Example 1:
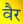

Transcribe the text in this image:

वैर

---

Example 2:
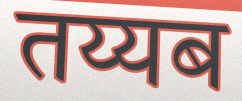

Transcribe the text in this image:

तय्यब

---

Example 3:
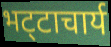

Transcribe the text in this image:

भट्‍टाचार्य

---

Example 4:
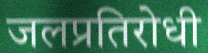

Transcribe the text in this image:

जलप्रतिरोधी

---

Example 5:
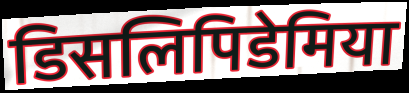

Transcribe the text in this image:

डिसलिपिडेमिया